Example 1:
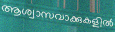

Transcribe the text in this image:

ആശ്വാസവാക്കുകളിൽ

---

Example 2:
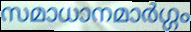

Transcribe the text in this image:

സമാധാനമാർഗ്ഗം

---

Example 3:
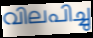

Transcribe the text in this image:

വിലപിച്ചു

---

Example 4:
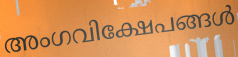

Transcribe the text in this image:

അംഗവിക്ഷേപങ്ങൾ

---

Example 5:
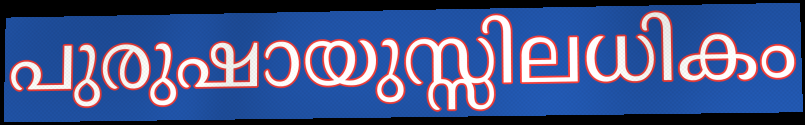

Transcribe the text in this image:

പുരുഷായുസ്സിലധികം